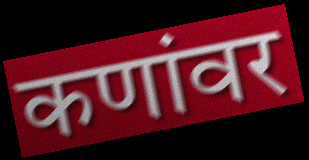
कणांवर